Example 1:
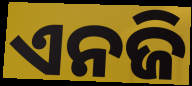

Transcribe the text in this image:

ଏନଜି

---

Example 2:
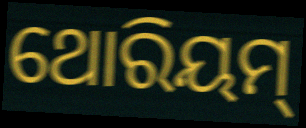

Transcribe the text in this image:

ଥୋରିୟମ୍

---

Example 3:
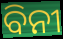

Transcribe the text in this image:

ବିନୀ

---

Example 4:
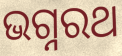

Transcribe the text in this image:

ଭଗ୍ନରଥ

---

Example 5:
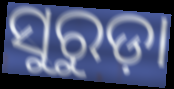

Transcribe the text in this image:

ସୁରୁଡ଼ା